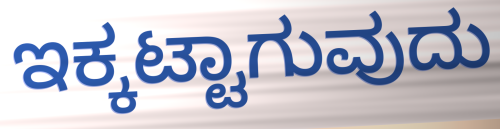
ಇಕ್ಕಟ್ಟಾಗುವುದು